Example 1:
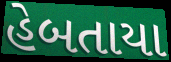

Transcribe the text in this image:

હેબતાયા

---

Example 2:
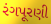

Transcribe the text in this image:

રંગપૂરણી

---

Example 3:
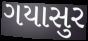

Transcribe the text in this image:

ગયાસુર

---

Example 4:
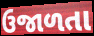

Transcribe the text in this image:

ઉજાળતા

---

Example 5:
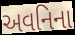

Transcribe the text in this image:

અવનિના